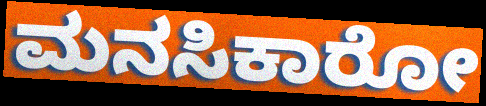
ಮನಸಿಕಾರೋ